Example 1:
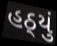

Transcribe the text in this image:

હઠ્યું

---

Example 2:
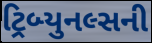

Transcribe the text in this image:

ટ્રિબ્યુનલ્સની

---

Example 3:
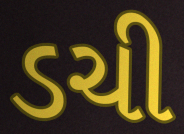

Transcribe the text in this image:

ડચી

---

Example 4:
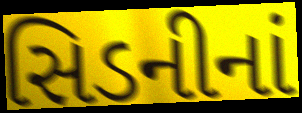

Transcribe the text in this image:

સિડનીનાં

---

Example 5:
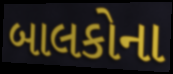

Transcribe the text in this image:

બાલકોના